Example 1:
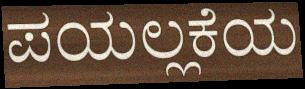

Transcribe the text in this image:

ಪಯಲ್ಲಕೆಯ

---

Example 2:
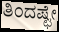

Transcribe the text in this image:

ತಿಂದಷ್ಟೇ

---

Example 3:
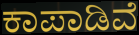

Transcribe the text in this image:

ಕಾಪಾಡಿವೆ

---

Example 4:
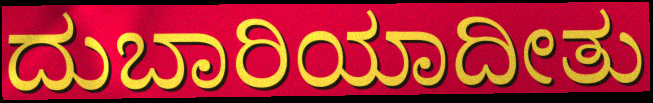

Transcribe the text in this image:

ದುಬಾರಿಯಾದೀತು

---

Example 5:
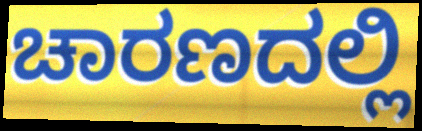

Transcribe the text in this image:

ಚಾರಣದಲ್ಲಿ